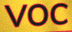
VOC